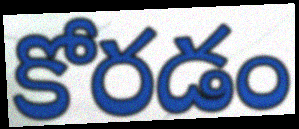
కోరడం